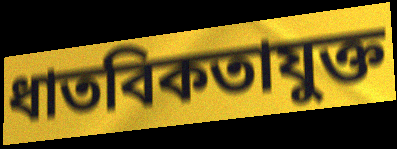
ধাতবিকতাযুক্ত